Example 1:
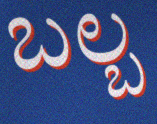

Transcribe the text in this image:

ಬಲ್ಬ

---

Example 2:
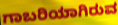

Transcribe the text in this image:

ಗಾಬರಿಯಾಗಿರುವ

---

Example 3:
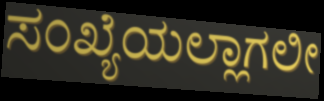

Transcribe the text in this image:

ಸಂಖ್ಯೆಯಲ್ಲಾಗಲೀ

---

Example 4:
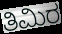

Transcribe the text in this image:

ತಿಮಿರ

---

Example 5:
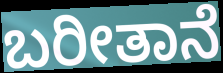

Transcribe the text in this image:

ಬರೀತಾನೆ